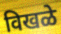
विखळे